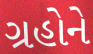
ગ્રહોને